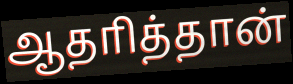
ஆதரித்தான்